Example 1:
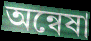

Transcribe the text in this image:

অন্বেষা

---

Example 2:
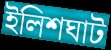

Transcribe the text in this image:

ইলিশঘাট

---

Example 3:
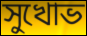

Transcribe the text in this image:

সুখোভ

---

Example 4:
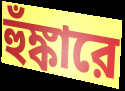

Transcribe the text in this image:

হুঁঙ্কারে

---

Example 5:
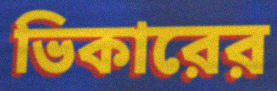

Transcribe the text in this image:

ভিকারের